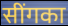
सींगका